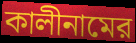
কালীনামের